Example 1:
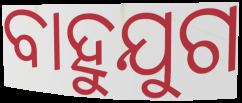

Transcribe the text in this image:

ବାହୁଯୁଗ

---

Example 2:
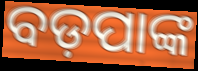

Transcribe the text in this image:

ବଡ଼ପାଙ୍କ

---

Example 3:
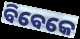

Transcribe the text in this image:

ବିବେକେ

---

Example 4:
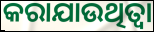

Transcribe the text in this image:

କରାଯାଉଥିତ୍ବା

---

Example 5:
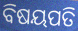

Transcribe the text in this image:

ବିଷୟପତି